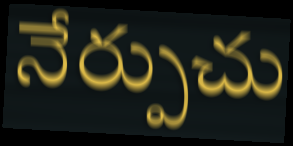
నేర్పుచు